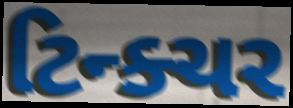
ટિન્ક્ચર